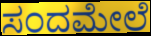
ಸಂದಮೇಲೆ